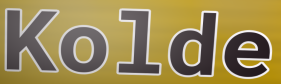
Kolde